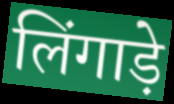
लिंगाड़े